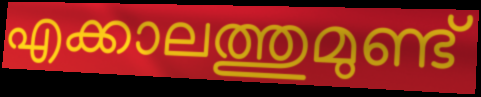
എക്കാലത്തുമുണ്ട്